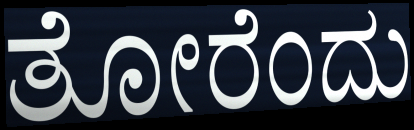
ತೋರೆಂದು